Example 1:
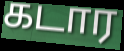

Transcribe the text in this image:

கடார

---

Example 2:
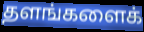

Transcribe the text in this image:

தளங்களைக்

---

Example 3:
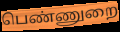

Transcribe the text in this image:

பெண்ணுறை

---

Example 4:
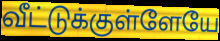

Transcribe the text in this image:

வீட்டுக்குள்ளேயே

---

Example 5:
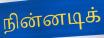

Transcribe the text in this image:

நின்னடிக்